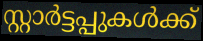
സ്റ്റാർട്ടപ്പുകൾക്ക്